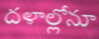
దళాల్లోనూ